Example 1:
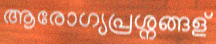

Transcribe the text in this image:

ആരോഗ്യപ്രശ്നങ്ങള്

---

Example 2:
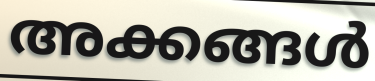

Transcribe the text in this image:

അക്കങ്ങൾ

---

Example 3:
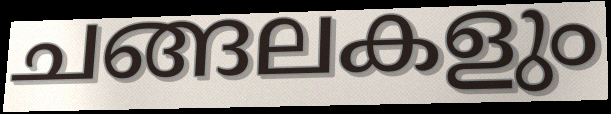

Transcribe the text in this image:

ചങ്ങലകളും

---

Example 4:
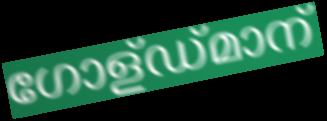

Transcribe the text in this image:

ഗോള്ഡ്മാന്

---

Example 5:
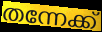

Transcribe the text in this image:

തന്നേക്ക്